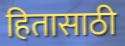
हितासाठी